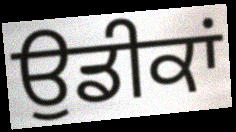
ਉਡੀਕਾਂ